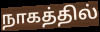
நாகத்தில்